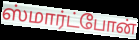
ஸ்மார்ட்போன்